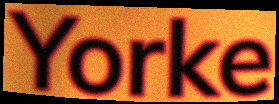
Yorke